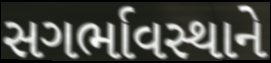
સગર્ભાવસ્થાને